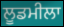
ਲੂਡਮੀਲਾ